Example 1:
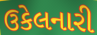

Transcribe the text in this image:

ઉકેલનારી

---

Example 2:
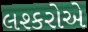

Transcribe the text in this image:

લશ્કરોએ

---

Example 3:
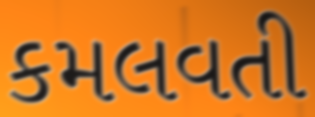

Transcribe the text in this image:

કમલવતી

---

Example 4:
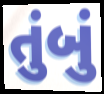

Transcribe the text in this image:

તુંબું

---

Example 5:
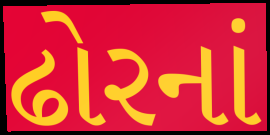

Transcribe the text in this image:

ઢોરનાં